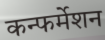
कन्‍फर्मेशन